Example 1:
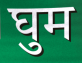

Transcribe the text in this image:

घुम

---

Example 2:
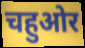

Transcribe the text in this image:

चहुओर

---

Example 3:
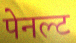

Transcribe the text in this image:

पेनल्ट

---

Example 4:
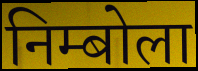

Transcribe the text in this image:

निम्बोला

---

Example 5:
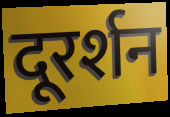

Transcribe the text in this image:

दूरर्शन